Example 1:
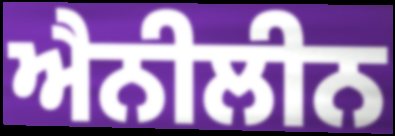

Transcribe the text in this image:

ਐਨੀਲੀਨ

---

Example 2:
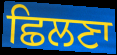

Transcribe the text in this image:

ਛਿਲਣਾ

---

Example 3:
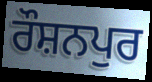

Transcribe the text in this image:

ਰੌਸ਼ਨਪੁਰ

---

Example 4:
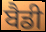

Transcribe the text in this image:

ਬੈਡੀ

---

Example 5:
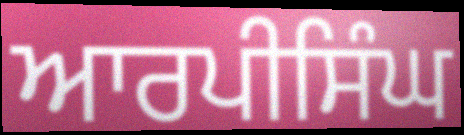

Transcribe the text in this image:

ਆਰਪੀਸਿੰਘ